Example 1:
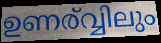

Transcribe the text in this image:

ഉണര്വ്വിലും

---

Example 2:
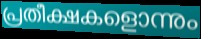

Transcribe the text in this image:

പ്രതീക്ഷകളൊന്നും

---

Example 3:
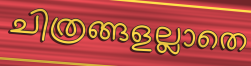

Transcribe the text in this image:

ചിത്രങ്ങളല്ലാതെ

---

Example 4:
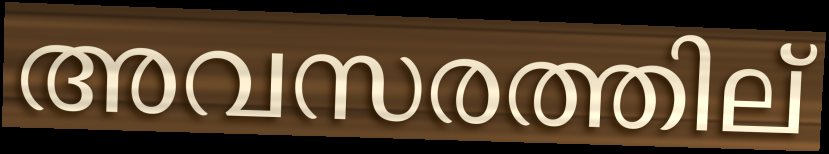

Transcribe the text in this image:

അവസരത്തില്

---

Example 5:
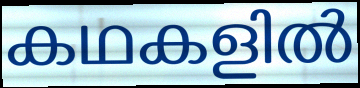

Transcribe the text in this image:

കഥകളിൽ